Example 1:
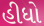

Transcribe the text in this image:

હીધો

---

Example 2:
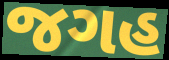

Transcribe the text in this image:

જગહ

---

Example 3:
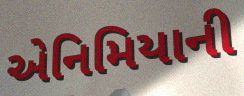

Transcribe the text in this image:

એનિમિયાની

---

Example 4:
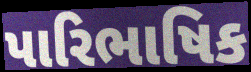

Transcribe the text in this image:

પારિભાષિક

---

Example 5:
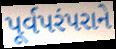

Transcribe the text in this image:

પૂર્વપરંપરાને